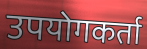
उपयोगकर्ता